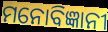
ମନୋବିଜ୍ଞାନୀ